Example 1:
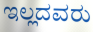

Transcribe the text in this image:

ಇಲ್ಲದವರು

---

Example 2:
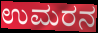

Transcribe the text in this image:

ಉಮರನ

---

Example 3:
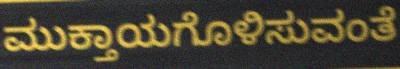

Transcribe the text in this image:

ಮುಕ್ತಾಯಗೊಳಿಸುವಂತೆ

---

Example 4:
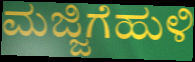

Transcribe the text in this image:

ಮಜ್ಜಿಗೆಹುಳಿ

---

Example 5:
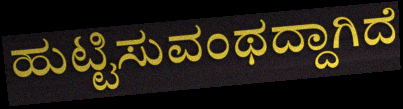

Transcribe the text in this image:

ಹುಟ್ಟಿಸುವಂಥದ್ದಾಗಿದೆ